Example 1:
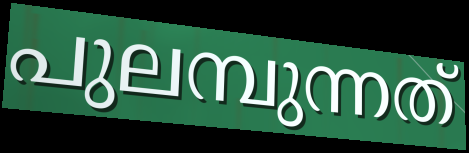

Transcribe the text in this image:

പുലമ്പുന്നത്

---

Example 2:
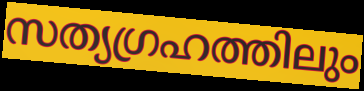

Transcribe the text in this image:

സത്യഗ്രഹത്തിലും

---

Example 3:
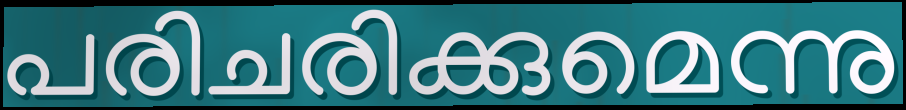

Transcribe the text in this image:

പരിചരിക്കുമെന്നു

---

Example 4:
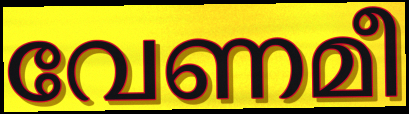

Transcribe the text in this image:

വേണമീ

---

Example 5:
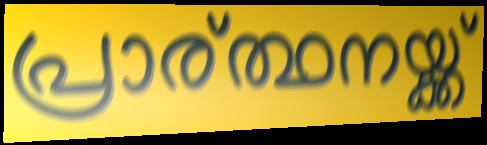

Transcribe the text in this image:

പ്രാര്ത്ഥനയ്ക്ക്